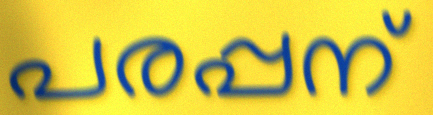
പരപ്പന്